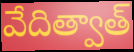
వేదిత్వాత్